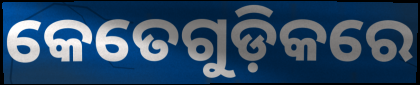
କେତେଗୁଡ଼ିକରେ